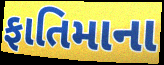
ફાતિમાના